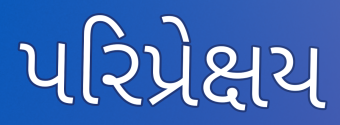
પરિપ્રેક્ષય